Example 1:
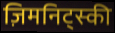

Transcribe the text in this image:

ज़िमनिट्स्की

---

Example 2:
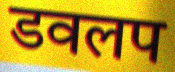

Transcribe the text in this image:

डवलप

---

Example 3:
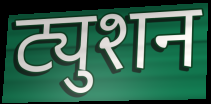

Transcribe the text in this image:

ट्युशन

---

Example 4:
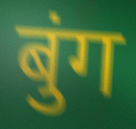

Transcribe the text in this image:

बुंग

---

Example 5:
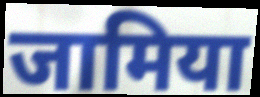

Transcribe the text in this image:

जामिया